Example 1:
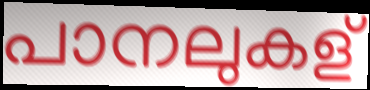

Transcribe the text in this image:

പാനലുകള്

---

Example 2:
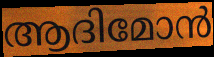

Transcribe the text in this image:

ആദിമോൻ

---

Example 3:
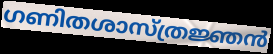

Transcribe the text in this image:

ഗണിതശാസ്ത്രജ്ഞൻ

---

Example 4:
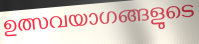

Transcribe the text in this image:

ഉത്സവയാഗങ്ങളുടെ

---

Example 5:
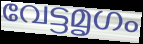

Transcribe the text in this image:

വേട്ടമൃഗം